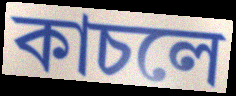
কাচলে